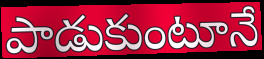
పాడుకుంటూనే